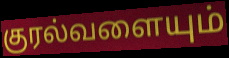
குரல்வளையும்